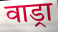
वाड्रा